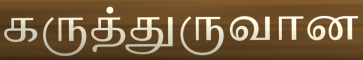
கருத்துருவான